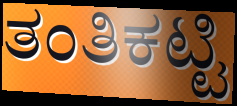
ತಂತಿಕಟ್ಟಿ